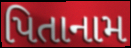
પિતાનામ